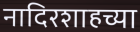
नादिरशाहच्या